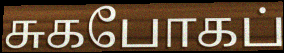
சுகபோகப்